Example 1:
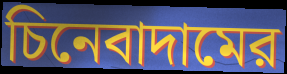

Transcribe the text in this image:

চিনেবাদামের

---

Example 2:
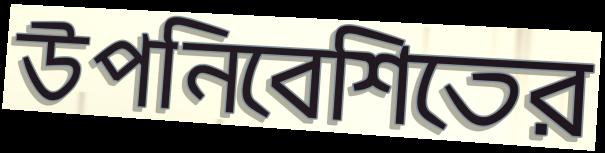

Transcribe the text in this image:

উপনিবেশিতের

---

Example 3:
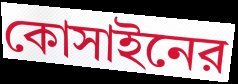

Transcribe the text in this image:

কোসাইনের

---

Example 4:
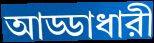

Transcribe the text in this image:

আড্ডাধারী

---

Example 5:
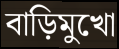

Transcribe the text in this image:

বাড়িমুখো